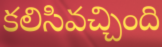
కలిసివచ్చింది